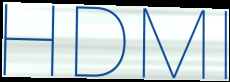
HDMI